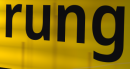
rung